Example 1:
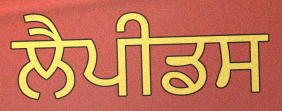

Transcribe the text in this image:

ਲੈਪੀਡਸ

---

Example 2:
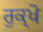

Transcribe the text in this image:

ਰੁਕ੍ਖੋ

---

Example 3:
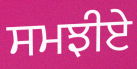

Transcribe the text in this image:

ਸਮਝੀਏ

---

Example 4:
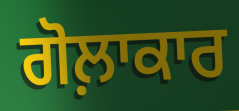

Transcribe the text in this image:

ਗੋਲ਼ਾਕਾਰ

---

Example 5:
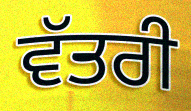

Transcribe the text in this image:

ਵੱਤਰੀ